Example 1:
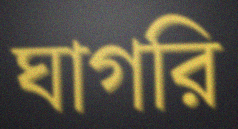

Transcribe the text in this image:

ঘাগরি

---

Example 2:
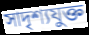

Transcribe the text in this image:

সাদৃশ্যযুক্ত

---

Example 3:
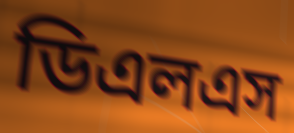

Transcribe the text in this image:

ডিএলএস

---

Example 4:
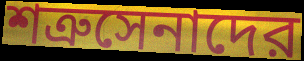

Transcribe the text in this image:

শত্রুসেনাদের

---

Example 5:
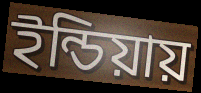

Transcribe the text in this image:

ইন্ডিয়ায়